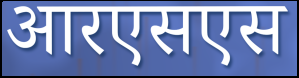
आरएसएस